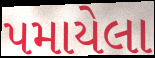
પમાયેલા